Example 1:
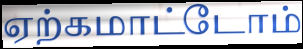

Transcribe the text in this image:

ஏற்கமாட்டோம்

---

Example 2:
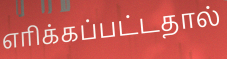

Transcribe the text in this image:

எரிக்கப்பட்டதால்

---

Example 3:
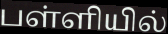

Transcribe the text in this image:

பள்ளியில்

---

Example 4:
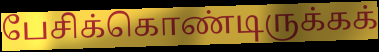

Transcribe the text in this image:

பேசிக்கொண்டிருக்கக்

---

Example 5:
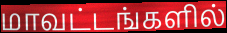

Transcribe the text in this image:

மாவட்டங்களில்